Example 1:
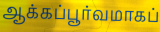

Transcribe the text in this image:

ஆக்கப்பூர்வமாகப்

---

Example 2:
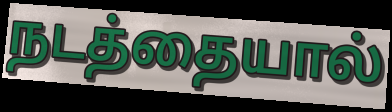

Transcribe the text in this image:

நடத்தையால்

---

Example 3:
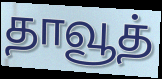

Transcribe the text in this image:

தாவூத்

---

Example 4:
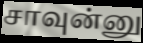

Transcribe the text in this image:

சாவுன்னு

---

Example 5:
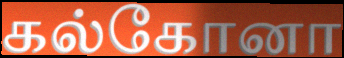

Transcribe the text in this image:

கல்கோனா